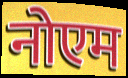
नोएम